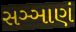
સઞ્ઞાણં